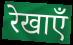
रेखाएँ